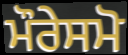
ਮੌਰੇਸਮੋ